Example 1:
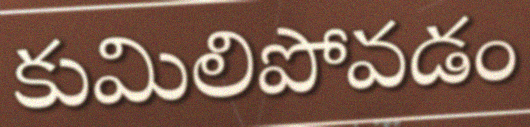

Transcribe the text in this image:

కుమిలిపోవడం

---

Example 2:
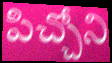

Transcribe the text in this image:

పిచ్చోని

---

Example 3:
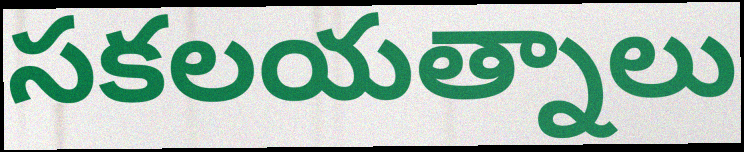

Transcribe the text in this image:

సకలయత్నాలు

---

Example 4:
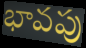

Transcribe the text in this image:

భావపు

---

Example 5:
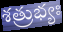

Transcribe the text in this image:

శత్రుభ్యః